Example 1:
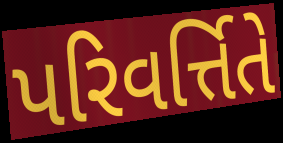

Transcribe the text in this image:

પરિવર્ત્તિતે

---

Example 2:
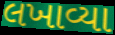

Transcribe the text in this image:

લખાવ્યા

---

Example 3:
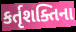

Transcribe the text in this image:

કર્તૃશક્તિના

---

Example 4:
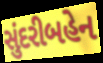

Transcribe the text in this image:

સુંદરીબહેન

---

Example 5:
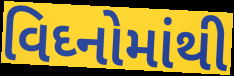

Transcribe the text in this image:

વિઘ્નોમાંથી